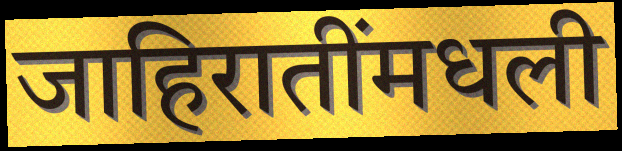
जाहिरातींमधली